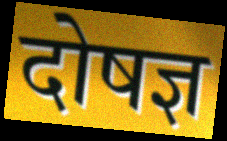
दोषज्ञ